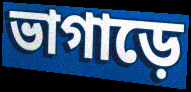
ভাগাড়ে